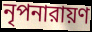
নৃপনারায়ণ